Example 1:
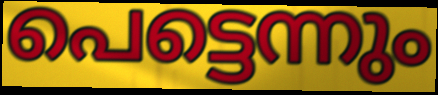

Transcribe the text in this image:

പെട്ടെന്നും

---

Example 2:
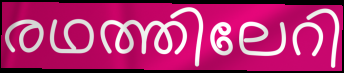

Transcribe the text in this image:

രഥത്തിലേറി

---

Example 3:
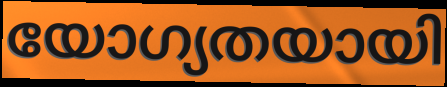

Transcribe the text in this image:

യോഗ്യതയായി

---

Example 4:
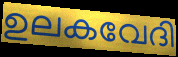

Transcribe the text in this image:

ഉലകവേദി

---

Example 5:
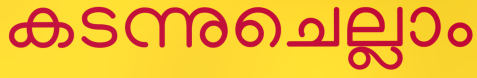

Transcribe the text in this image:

കടന്നുചെല്ലാം